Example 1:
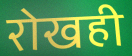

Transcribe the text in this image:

रोखही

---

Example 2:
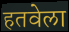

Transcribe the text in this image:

हतवेला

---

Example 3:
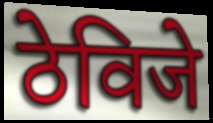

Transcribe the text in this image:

ठेविजे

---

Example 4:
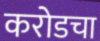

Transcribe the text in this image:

करोडचा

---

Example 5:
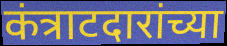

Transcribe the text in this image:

कंत्राटदारांच्या